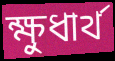
ক্ষুধার্থ